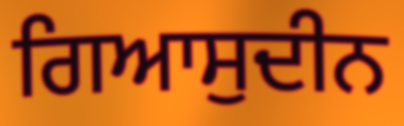
ਗਿਆਸੁਦੀਨ